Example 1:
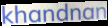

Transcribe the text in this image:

khandnan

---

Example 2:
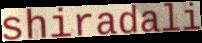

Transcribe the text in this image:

shiradali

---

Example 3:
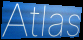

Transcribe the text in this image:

Atlas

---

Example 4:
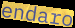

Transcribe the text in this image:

endaro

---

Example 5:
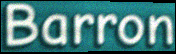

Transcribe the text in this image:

Barron